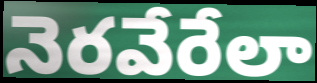
నెరవేరేలా